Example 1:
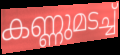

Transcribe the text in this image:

കണ്ണുമടച്ച്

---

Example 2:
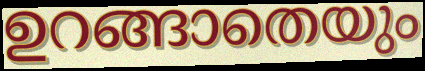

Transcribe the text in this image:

ഉറങ്ങാതെയും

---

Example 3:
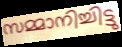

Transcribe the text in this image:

സമ്മാനിച്ചിട്ടു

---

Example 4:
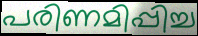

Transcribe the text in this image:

പരിണമിപ്പിച്ച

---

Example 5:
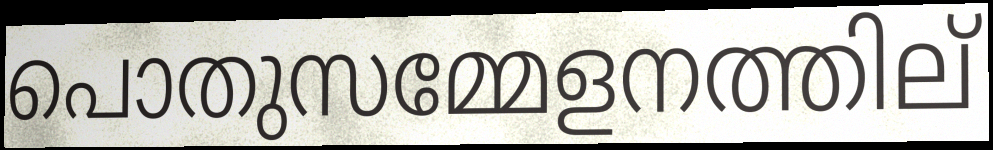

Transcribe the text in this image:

പൊതുസമ്മേളനത്തില്